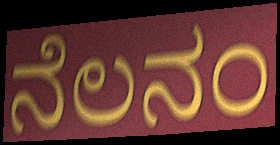
ನೆಲನಂ